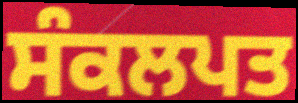
ਸੰਕਲਪਤ